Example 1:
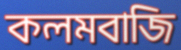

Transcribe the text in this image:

কলমবাজি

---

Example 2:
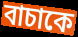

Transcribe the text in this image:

বাচাকে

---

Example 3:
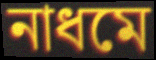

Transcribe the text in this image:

নাধমে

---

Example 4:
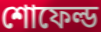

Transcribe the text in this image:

শোফেল্ড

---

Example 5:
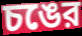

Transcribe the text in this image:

চঙের